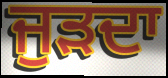
ਜੁੜਦਾ